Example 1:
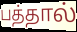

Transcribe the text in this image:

பத்தால்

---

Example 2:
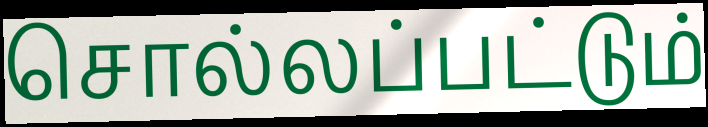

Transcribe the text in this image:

சொல்லப்பட்டும்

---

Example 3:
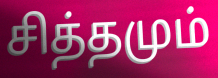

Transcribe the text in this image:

சித்தமும்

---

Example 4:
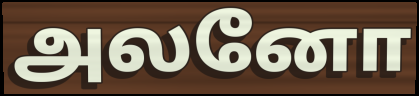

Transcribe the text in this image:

அலனோ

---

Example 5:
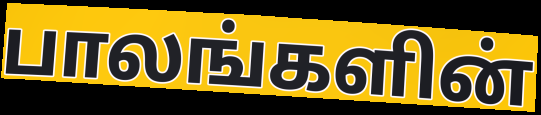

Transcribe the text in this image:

பாலங்களின்